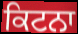
ਕਿਟਨਾ